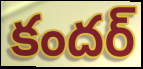
కందర్